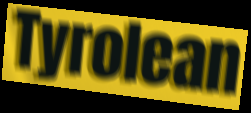
Tyrolean